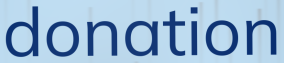
donation